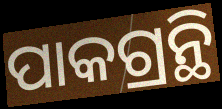
ପାକଗ୍ରନ୍ଥି